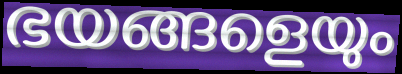
ഭയങ്ങളെയും